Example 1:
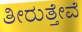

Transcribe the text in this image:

ತೀರುತ್ತೇವೆ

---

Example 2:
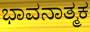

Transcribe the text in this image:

ಭಾವನಾತ್ಮಕ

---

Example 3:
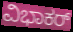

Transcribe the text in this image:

ವಿಭಾಕರ್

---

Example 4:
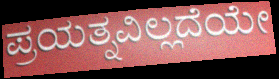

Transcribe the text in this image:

ಪ್ರಯತ್ನವಿಲ್ಲದೆಯೇ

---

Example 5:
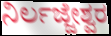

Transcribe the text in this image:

ನಿರ್ಲಜ್ಜೇಶ್ವರ